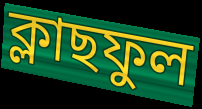
ক্লাছফুল